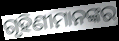
ଗୃହିଣୀମାନଙ୍କର